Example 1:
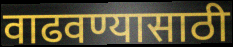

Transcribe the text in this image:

वाढवण्यासाठी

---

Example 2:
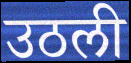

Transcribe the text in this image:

उठली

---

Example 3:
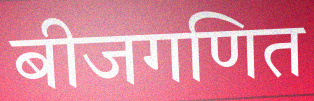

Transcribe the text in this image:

बीजगणित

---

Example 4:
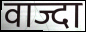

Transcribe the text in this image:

वाज्दा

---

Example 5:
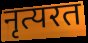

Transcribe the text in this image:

नृत्यरत